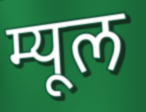
म्यूल